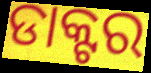
ଡାକ୍ଟର